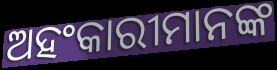
ଅହଂକାରୀମାନଙ୍କ